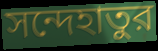
সন্দেহাতুর